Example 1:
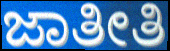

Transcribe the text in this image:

ಜಾತೀತಿ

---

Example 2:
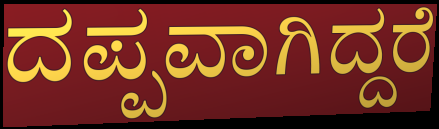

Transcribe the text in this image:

ದಪ್ಪವಾಗಿದ್ದರೆ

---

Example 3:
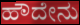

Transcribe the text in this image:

ಹೌದೇನು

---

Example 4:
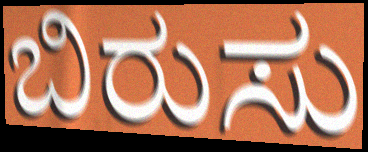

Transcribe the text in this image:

ಬಿರುಸು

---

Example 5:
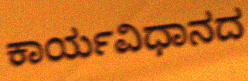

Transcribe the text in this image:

ಕಾರ್ಯವಿಧಾನದ